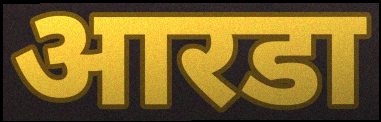
आरडा